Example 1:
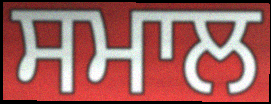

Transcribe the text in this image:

ਸਮਾਲ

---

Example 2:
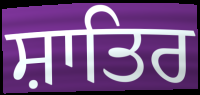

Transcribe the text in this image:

ਸ਼ਾਤਿਰ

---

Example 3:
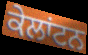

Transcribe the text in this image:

ਕੇਲਾਂਟਨ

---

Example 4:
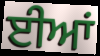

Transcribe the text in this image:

ਈਆਂ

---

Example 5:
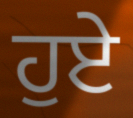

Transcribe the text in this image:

ਹੁਏ